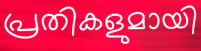
പ്രതികളുമായി